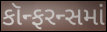
કૉન્ફરન્સમાં